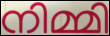
നിമ്മി